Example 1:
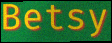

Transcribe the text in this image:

Betsy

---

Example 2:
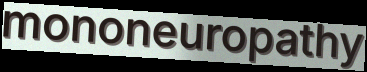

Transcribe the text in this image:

mononeuropathy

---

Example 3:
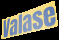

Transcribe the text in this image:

Valase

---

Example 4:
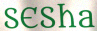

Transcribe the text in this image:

SESha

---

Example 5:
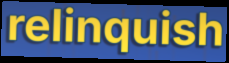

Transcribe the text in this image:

relinquish